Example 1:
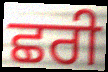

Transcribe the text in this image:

ਛਰੀ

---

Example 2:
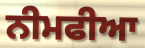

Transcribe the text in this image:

ਨੀਮਫੀਆ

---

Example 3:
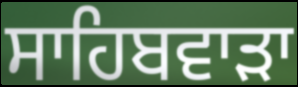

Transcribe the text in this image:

ਸਾਹਿਬਵਾੜਾ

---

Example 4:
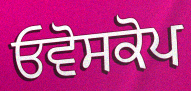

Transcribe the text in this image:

ਓਵੋਸਕੋਪ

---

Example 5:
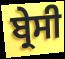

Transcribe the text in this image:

ਬ੍ਰੇਸੀ